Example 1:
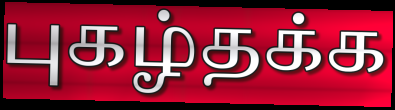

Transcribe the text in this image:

புகழ்தக்க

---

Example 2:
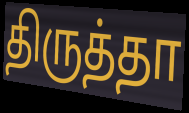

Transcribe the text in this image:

திருத்தா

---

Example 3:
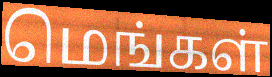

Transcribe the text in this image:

மெங்கள்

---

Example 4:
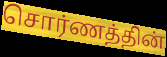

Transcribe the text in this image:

சொர்ணத்தின்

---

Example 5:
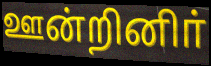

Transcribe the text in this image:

ஊன்றினிர்